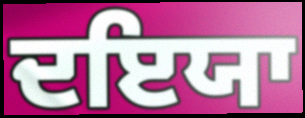
ਦਇਯਾ